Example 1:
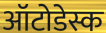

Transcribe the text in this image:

ऑटोडेस्क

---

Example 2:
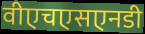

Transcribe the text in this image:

वीएचएसएनडी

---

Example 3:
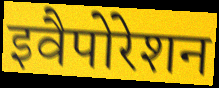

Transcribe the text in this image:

इवैपोरेशन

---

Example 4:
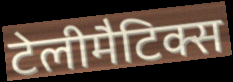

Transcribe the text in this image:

टेलीमैटिक्स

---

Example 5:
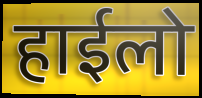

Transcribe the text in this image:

हाईलो